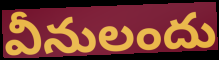
వీనులందు